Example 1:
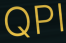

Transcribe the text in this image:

QPI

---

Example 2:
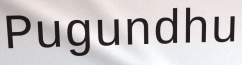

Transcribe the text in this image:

Pugundhu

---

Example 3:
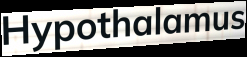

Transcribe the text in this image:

Hypothalamus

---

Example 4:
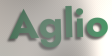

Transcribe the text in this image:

Aglio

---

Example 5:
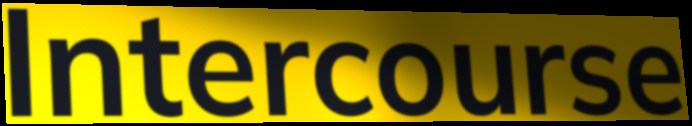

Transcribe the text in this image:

Intercourse